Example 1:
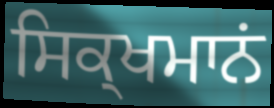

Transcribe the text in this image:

ਸਿਕ੍ਖਮਾਨਂ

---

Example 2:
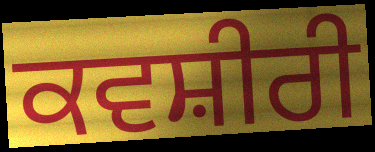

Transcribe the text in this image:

ਕਵਸ਼ੀਰੀ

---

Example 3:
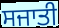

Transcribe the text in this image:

ਸਜਾਤੀ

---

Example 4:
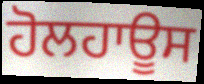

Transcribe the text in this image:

ਹੋਲਹਾਊਸ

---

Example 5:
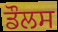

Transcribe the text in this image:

ਡੌਲਸ